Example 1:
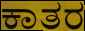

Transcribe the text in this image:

ಕಾತರ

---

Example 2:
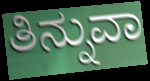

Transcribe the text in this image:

ತಿನ್ನುವಾ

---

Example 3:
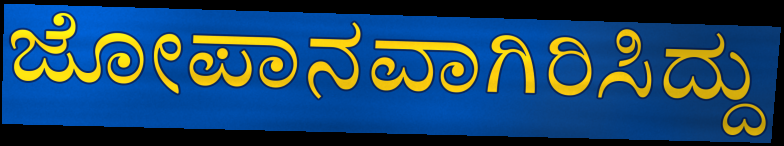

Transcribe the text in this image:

ಜೋಪಾನವಾಗಿರಿಸಿದ್ದು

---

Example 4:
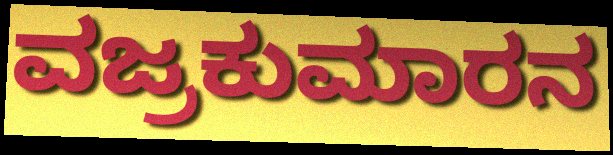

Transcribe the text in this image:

ವಜ್ರಕುಮಾರನ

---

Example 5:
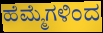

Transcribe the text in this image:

ಹೆಮ್ಮೆಗಳಿಂದ